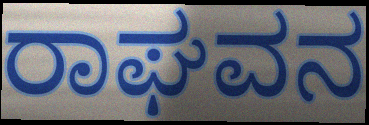
ರಾಘವನ